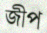
জীপ